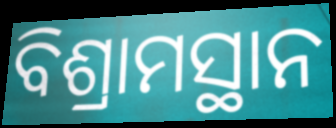
ବିଶ୍ରାମସ୍ଥାନ